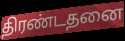
திரண்டதனை